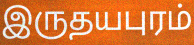
இருதயபுரம்